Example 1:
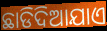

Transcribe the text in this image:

ଛାଡିଦିଆଯାଏ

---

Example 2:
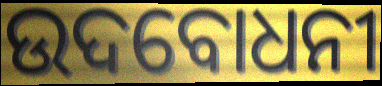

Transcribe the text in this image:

ଉଦବୋଧନୀ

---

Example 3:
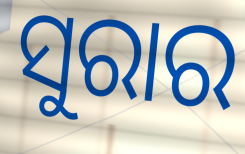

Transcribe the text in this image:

ସୁରାର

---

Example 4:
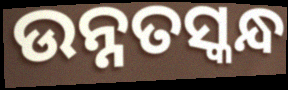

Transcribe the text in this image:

ଉନ୍ନତସ୍କନ୍ଧ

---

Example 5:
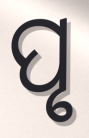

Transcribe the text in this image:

ପୃ